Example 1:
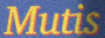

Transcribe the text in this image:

Mutis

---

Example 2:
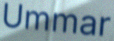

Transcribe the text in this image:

Ummar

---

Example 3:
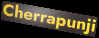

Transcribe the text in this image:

Cherrapunji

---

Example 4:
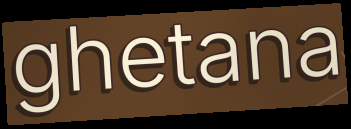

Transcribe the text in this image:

ghetana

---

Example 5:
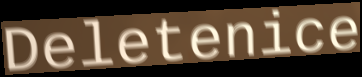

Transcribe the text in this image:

Deletenice